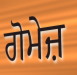
ਗੋਮੇਜ਼